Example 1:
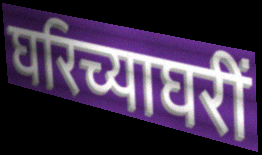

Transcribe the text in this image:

घरिच्याघरीं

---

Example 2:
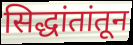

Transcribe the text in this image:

सिद्धांतांतून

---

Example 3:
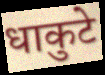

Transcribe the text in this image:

धाकुटे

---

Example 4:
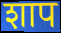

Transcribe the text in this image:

शाप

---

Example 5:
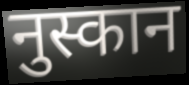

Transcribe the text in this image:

नुस्कान